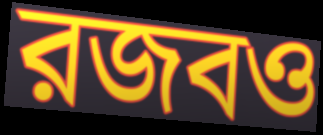
রজবও